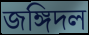
জঙ্গিদল